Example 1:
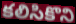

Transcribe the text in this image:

కలిసికొని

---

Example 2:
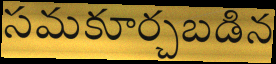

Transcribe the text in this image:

సమకూర్చబడిన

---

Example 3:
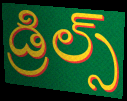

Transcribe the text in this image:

డ్రిల్స్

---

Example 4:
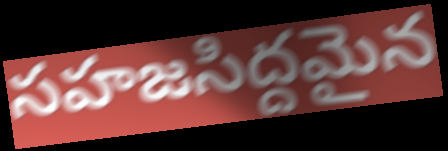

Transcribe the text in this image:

సహజసిద్దమైన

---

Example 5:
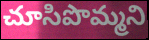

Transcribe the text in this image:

చూసిపొమ్మని